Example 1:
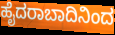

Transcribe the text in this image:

ಹೈದರಾಬಾದಿನಿಂದ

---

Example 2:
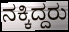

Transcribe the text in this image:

ನಕ್ಕಿದ್ದರು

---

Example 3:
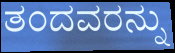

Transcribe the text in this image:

ತಂದವರನ್ನು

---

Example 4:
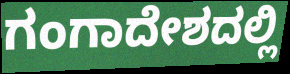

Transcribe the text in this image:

ಗಂಗಾದೇಶದಲ್ಲಿ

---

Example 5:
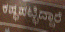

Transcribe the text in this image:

ಕಷ್ಟಪಟ್ಟಿದ್ದಾರೆ